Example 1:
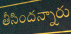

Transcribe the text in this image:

తీసిందన్నారు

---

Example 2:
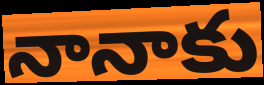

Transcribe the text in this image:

నానాకు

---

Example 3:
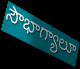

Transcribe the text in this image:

సౌభాగ్యాలూ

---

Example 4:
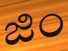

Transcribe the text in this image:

జిం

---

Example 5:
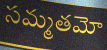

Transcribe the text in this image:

సమ్మతమో